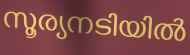
സൂര്യനടിയിൽ